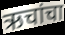
ऋचांचा